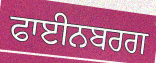
ਫਾਈਨਬਰਗ